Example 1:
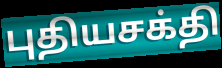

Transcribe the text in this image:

புதியசக்தி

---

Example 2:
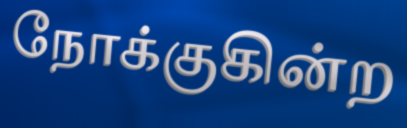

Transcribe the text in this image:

நோக்குகின்ற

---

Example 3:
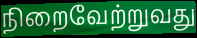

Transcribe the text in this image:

நிறைவேற்றுவது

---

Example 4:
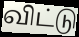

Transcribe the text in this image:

விட்டு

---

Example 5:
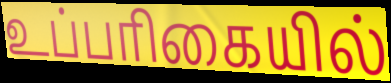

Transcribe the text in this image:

உப்பரிகையில்